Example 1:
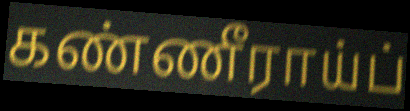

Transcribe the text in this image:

கண்ணீராய்ப்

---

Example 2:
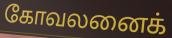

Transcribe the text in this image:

கோவலனைக்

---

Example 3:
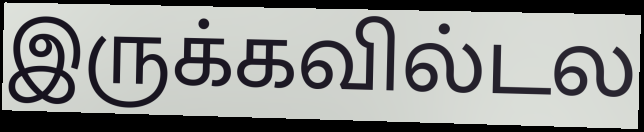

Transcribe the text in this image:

இருக்கவில்டல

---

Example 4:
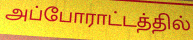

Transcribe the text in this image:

அப்போராட்டத்தில்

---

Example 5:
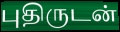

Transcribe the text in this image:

புதிருடன்